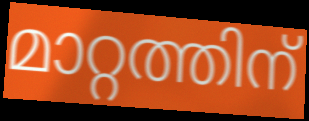
മാറ്റത്തിന്